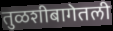
तुळशीबागेतली